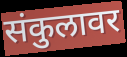
संकुलावर